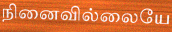
நினைவில்லையே